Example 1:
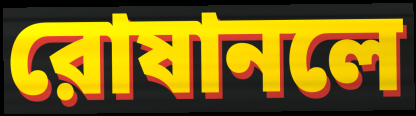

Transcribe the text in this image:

রোষানলে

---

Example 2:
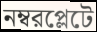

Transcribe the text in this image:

নম্বরপ্লেটে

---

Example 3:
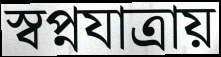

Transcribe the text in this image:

স্বপ্নযাত্রায়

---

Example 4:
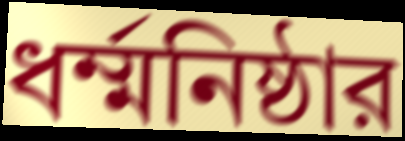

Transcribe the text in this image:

ধর্ম্মনিষ্ঠার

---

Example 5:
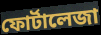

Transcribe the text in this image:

ফোর্টালেজা